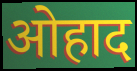
ओहाद